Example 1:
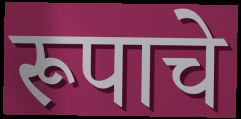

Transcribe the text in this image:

रूपाचे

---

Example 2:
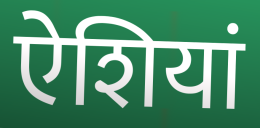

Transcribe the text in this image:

ऐशियां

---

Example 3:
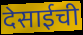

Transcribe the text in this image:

देसाईची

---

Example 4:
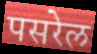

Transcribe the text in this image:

पसरेल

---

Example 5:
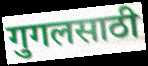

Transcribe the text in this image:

गुगलसाठी